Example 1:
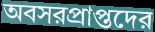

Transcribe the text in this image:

অবসরপ্রাপ্তদের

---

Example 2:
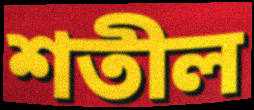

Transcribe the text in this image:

শতীল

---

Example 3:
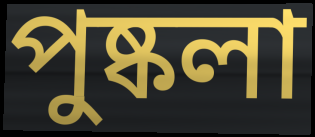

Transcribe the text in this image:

পুষ্কলা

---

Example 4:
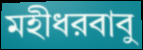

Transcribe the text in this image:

মহীধরবাবু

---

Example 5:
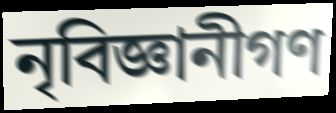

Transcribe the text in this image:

নৃবিজ্ঞানীগণ